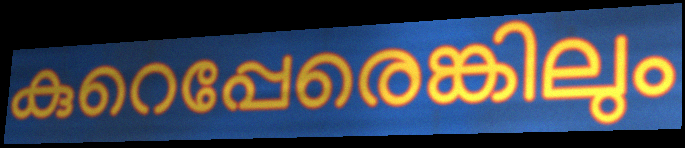
കുറെപ്പേരെങ്കിലും